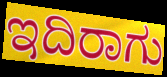
ಇದಿರಾಗು